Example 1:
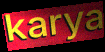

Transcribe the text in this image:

karya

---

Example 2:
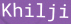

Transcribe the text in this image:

Khilji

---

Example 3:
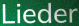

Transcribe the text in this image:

Lieder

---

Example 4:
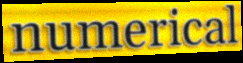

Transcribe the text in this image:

numerical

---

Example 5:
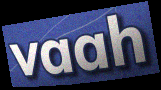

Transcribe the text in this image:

vaah